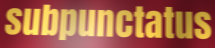
subpunctatus